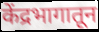
केंद्रभागातून